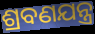
ଶ୍ରବଣଯନ୍ତ୍ର